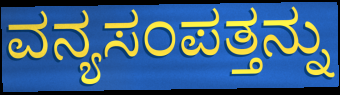
ವನ್ಯಸಂಪತ್ತನ್ನು